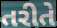
તરીતે